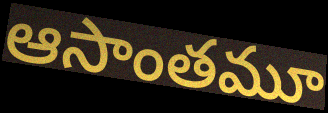
ఆసాంతమూ